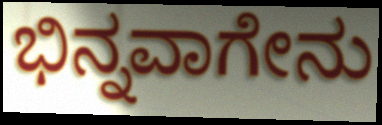
ಭಿನ್ನವಾಗೇನು